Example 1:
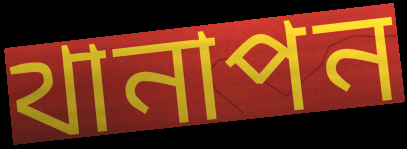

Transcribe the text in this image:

থানাপন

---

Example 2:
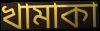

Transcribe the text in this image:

খামাকা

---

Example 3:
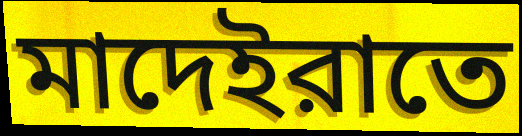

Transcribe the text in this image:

মাদেইরাতে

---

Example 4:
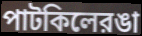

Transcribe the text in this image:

পাটকিলেরঙা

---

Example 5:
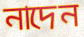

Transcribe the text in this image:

নাদেন